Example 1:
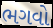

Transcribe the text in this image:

ભગવો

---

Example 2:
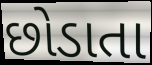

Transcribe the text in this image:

છોડાતા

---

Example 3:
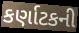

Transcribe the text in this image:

કર્ણાટકની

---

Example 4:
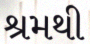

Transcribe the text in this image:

શ્રમથી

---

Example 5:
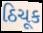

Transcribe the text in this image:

ઠિચૂક